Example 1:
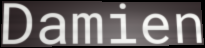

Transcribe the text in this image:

Damien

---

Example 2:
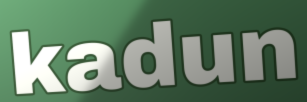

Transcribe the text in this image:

kadun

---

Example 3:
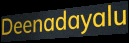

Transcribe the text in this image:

Deenadayalu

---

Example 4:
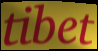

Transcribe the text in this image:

tibet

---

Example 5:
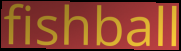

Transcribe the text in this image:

fishball